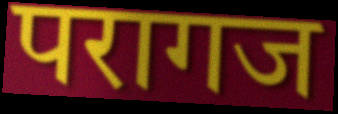
परागज